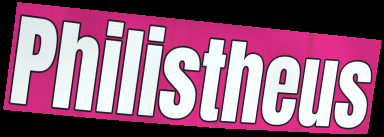
Philistheus